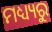
ମଧ୍ୟ୍ୟରୁ